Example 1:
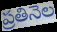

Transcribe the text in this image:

ప్రతినెల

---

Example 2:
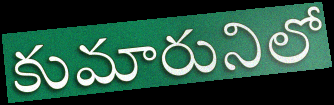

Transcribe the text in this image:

కుమారునిలో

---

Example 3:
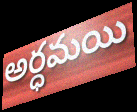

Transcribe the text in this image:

అర్ధమయి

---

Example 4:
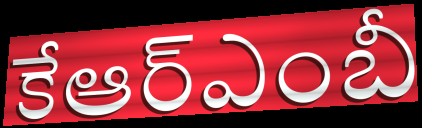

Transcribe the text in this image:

కేఆర్ఎంబీ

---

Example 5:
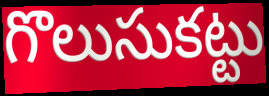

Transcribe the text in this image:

గొలుసుకట్టు